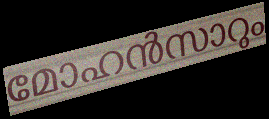
മോഹൻസാറും